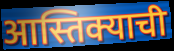
आस्तिक्याची